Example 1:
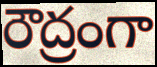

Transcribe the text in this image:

రౌద్రంగా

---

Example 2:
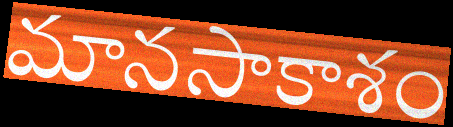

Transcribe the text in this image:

మానసాకాశం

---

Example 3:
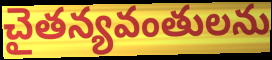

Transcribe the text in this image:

చైతన్యవంతులను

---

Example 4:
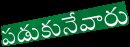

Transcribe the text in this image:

పడుకునేవారు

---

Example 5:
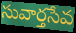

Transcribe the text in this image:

సువార్తసేవ